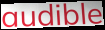
audible